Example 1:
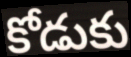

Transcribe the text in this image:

కోడుకు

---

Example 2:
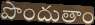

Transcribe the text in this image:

పొందుతాం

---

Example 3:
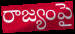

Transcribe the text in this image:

రాజ్యంపై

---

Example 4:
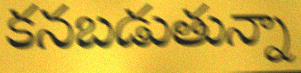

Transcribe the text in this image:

కనబడుతున్నా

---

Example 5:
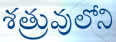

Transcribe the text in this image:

శత్రువులోని